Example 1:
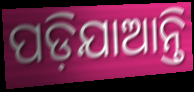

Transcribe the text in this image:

ପଡ଼ିଯାଆନ୍ତି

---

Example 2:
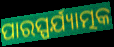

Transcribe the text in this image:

ପାରସ୍ପର୍ଯ୍ୟାତ୍ମକ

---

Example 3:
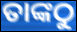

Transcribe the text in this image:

ତାଙ୍କଠୁ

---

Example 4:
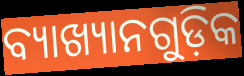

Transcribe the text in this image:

ବ୍ୟାଖ୍ୟାନଗୁଡ଼ିକ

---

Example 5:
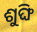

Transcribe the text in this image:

ଶୁଙ୍ଘି